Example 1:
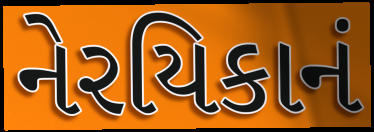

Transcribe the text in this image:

નેરયિકાનં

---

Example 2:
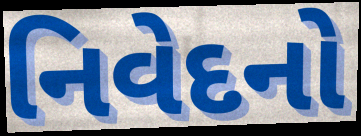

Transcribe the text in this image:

નિવેદનો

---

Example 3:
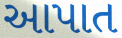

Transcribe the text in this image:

આપાત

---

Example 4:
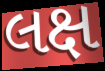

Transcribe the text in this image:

લક્ષ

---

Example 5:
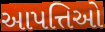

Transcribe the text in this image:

આપત્તિઓ